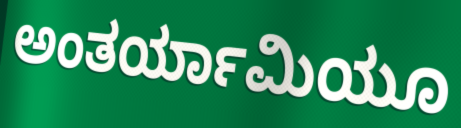
ಅಂತರ್ಯಾಮಿಯೂ